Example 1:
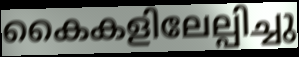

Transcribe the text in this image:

കൈകളിലേല്പിച്ചു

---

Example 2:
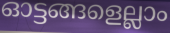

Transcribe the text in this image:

ഓട്ടങ്ങളെല്ലാം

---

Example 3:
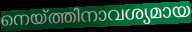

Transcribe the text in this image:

നെയ്ത്തിനാവശ്യമായ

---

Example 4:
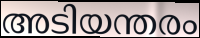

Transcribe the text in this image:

അടിയന്തരം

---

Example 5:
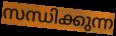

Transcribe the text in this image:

സന്ധിക്കുന്ന